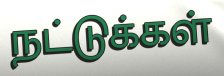
நட்டுக்கள்